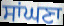
ਸਾਂਘਣਾ